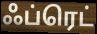
ஃப்ரெட்